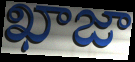
ఖాజా